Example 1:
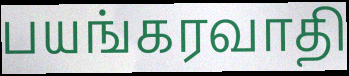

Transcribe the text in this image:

பயங்கரவாதி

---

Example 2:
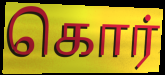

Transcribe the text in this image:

கொர்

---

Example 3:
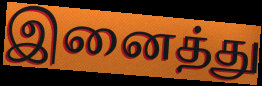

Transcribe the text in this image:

இனைத்து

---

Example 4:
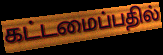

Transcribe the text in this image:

கட்டமைப்பதில்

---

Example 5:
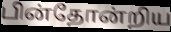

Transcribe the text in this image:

பின்தோன்றிய